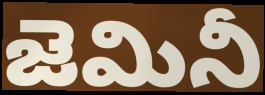
జెమినీ